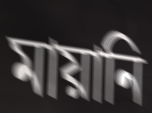
মায়ানি